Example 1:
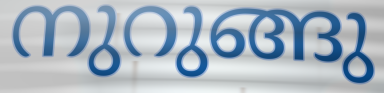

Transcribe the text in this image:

നുറുങ്ങു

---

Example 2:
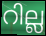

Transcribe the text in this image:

റില്ല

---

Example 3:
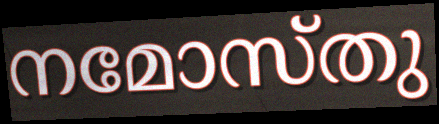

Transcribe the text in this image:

നമോസ്തു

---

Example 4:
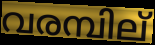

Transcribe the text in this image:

വരമ്പില്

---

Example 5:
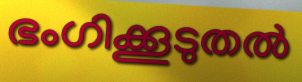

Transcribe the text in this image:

ഭംഗിക്കൂടുതൽ